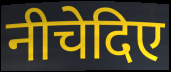
नीचेदिए